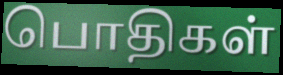
பொதிகள்